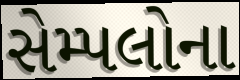
સેમ્પલોના